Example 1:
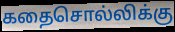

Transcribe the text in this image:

கதைசொல்லிக்கு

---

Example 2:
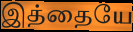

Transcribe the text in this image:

இத்தையே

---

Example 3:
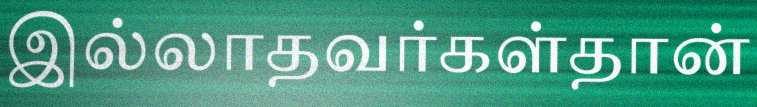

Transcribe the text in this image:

இல்லாதவர்கள்தான்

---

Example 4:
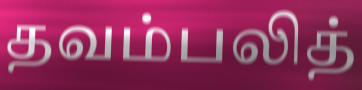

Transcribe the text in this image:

தவம்பலித்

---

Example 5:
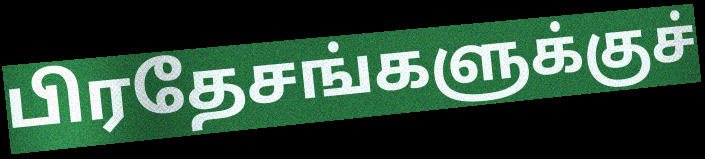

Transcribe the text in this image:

பிரதேசங்களுக்குச்